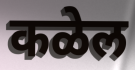
कळेल